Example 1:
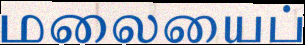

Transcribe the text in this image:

மலையைப்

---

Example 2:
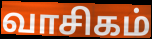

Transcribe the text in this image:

வாசிகம்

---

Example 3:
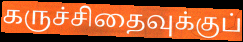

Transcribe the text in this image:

கருச்சிதைவுக்குப்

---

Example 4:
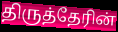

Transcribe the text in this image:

திருத்தேரின்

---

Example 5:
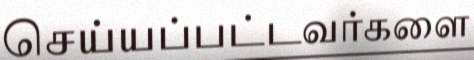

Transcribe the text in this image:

செய்யப்பட்டவர்களை